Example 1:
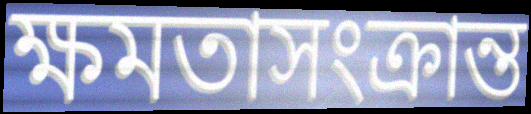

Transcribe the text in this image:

ক্ষমতাসংক্রান্ত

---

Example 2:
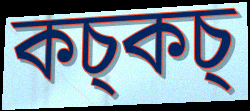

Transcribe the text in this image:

কচ্কচ্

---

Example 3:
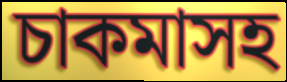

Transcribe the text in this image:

চাকমাসহ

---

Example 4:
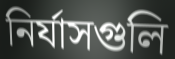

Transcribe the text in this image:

নির্যাসগুলি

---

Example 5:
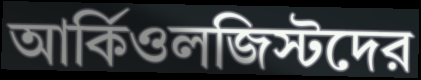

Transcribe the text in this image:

আর্কিওলজিস্টদের